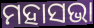
ମହାସଭା